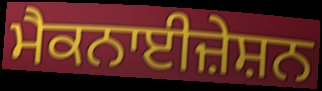
ਮੈਕਨਾਈਜ਼ੇਸ਼ਨ